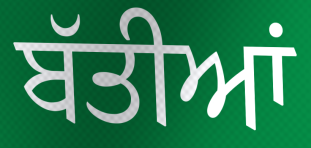
ਬੱਤੀਆਂ